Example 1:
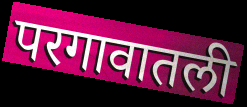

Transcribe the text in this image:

परगावातली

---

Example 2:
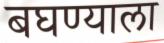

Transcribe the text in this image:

बघण्याला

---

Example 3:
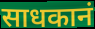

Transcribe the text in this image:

साधकानं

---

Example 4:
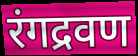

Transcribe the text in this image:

रंगद्रवण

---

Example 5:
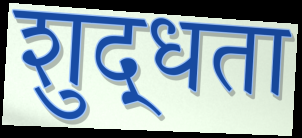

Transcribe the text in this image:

शुद्धता